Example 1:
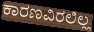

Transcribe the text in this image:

ಕಾರಣವಿರಲಿಲ್ಲ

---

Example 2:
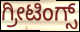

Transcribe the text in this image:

ಗ್ರೀಟಿಂಗ್ಸ್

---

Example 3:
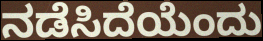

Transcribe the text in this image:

ನಡೆಸಿದೆಯೆಂದು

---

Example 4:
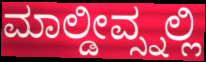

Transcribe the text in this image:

ಮಾಲ್ಡೀವ್ಸ್ನಲ್ಲಿ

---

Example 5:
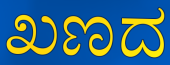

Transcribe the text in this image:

ಖಣದ